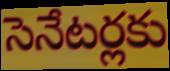
సెనేటర్లకు